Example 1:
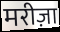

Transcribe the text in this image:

मरीज़ा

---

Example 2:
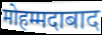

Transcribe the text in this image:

मोहम्मदाबाद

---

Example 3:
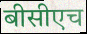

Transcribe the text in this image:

बीसीएच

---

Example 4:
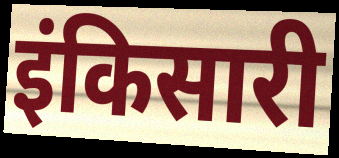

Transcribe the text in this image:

इंकिसारी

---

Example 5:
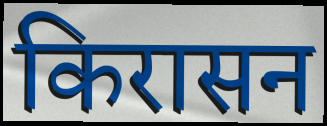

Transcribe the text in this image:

किरासन